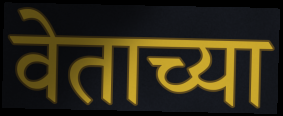
वेताच्या